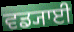
ਵਡ੍ਯਾਈ